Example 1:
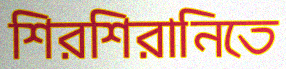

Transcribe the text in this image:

শিরশিরানিতে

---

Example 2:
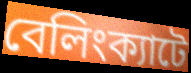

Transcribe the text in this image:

বেলিংক্যাটে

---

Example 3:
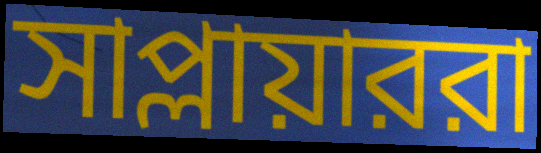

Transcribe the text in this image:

সাপ্লায়াররা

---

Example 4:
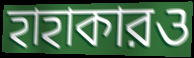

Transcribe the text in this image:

হাহাকারও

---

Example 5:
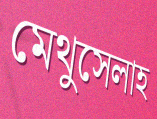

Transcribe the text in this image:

মেথুসেলাহ